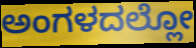
ಅಂಗಳದಲ್ಲೋ